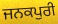
ਜਨਕਪੁਰੀ